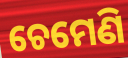
ଚେମେଣି